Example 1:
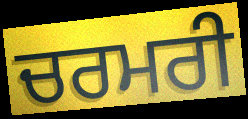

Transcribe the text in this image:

ਚਰਮਰੀ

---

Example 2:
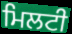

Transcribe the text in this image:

ਮਿਲਟੀ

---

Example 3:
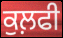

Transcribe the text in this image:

ਕੁਲ਼ਫੀ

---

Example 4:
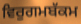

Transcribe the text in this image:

ਵਿਰੁਗਮਬੱਕਮ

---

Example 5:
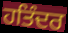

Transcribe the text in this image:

ਹਤਿੰਦਰ